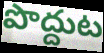
పొద్దుట